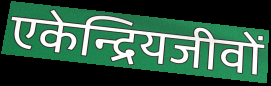
एकेन्द्रियजीवों